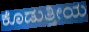
ಕೊಡುತ್ತೀಯ